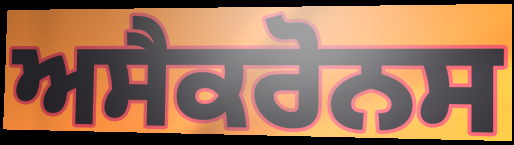
ਅਸੈਕਰੋਨਸ